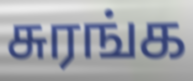
சுரங்க